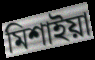
মিশাইয়া